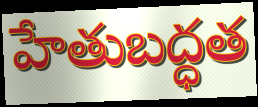
హేతుబద్ధత